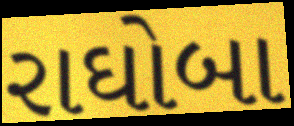
રાઘોબા